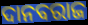
ଦାନବରାଜ